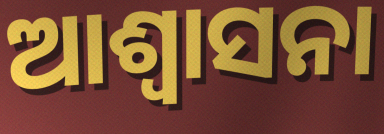
ଆଶ୍ୱାସନା